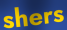
shers